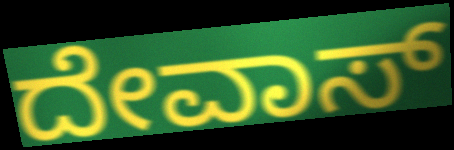
ದೇವಾಸ್